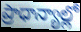
ప్రాధాన్యాల్లో